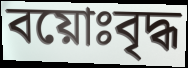
বয়োঃবৃদ্ধ